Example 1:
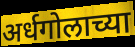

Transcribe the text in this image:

अर्धगोलाच्या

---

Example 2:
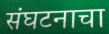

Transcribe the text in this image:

संघटनाचा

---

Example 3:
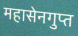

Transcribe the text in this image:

महासेनगुप्त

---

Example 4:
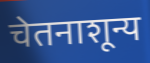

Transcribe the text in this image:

चेतनाशून्य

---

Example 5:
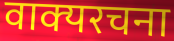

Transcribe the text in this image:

वाक्यरचना